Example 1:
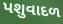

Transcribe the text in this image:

પશુવાદળ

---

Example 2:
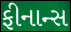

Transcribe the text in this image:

ફીનાન્સ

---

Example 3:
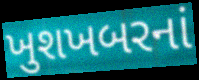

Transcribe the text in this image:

ખુશખબરનાં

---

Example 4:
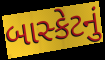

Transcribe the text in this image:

બાસ્કેટનું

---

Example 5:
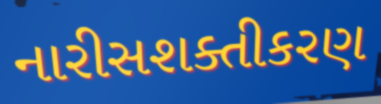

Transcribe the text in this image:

નારીસશક્તીકરણ